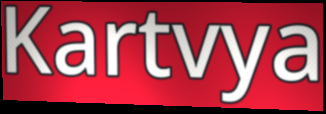
Kartvya